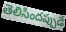
తెలిసిందప్పుడే